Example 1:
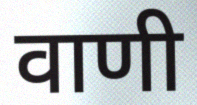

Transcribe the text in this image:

वाणी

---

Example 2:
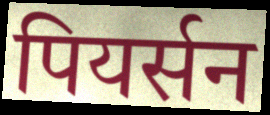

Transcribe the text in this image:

पियर्सन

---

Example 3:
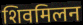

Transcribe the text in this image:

शिवमिलन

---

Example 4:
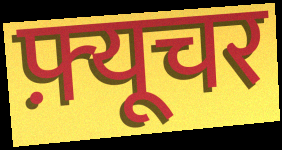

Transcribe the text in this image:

फ़्यूचर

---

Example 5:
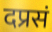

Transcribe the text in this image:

दप्रसं